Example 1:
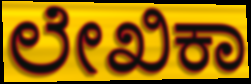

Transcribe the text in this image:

ಲೇಖಿಕಾ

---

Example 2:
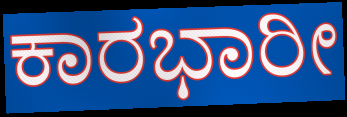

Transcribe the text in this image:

ಕಾರಭಾರೀ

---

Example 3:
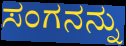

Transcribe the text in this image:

ಸಂಗನನ್ನು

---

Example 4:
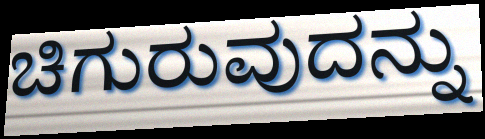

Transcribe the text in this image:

ಚಿಗುರುವುದನ್ನು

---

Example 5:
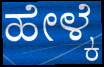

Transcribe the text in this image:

ಹೇಳ್ಕೆ